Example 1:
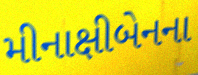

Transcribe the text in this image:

મીનાક્ષીબેનના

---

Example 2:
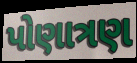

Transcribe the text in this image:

પોણાત્રણ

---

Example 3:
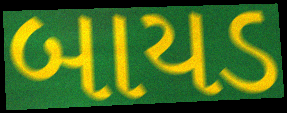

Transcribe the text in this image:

બાયડ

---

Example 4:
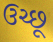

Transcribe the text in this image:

ઉચ્છૂ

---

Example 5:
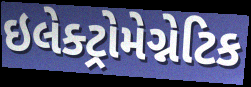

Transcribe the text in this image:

ઇલેક્ટ્રોમેગ્નેટિક